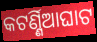
କଟର୍ଣ୍ଣିଆଘାଟ